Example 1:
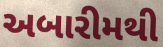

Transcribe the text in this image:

અબારીમથી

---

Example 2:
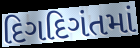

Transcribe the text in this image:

દિગદિગંતમાં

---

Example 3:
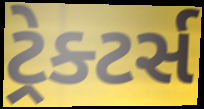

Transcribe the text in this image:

ટ્રેક્ટર્સ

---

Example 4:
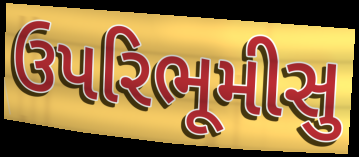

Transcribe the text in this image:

ઉપરિભૂમીસુ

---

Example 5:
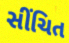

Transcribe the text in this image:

સીંચિત